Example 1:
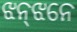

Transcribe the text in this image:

ଝନ୍‌ଝନେ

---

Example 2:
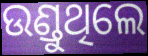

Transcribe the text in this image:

ଉଣ୍ଡୁଥିଲେ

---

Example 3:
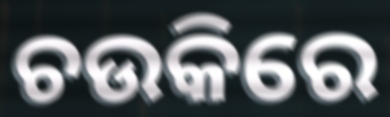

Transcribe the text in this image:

ଚଉକିରେ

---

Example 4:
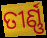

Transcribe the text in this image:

ତୀର୍ଣ୍ଣ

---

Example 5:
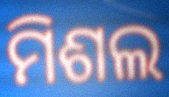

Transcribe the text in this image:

ମିଶଲ